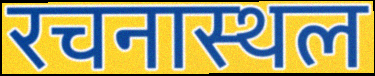
रचनास्थल